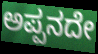
ಅಪ್ಪನದೇ